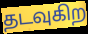
தடவுகிற